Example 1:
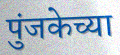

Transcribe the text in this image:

पुंजकेच्या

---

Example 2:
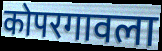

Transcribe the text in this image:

कोपरगावला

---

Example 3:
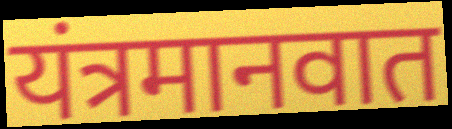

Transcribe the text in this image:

यंत्रमानवात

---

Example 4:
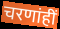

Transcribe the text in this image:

चरणांहीं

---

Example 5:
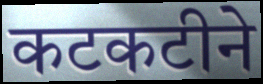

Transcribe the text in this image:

कटकटीने